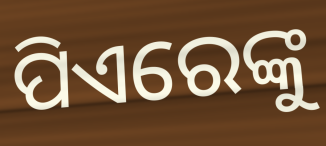
ପିଏରେଙ୍କୁ